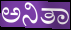
ಅನಿತಾ